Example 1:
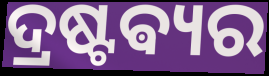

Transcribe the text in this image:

ଦ୍ରଷ୍ଟଵ୍ୟର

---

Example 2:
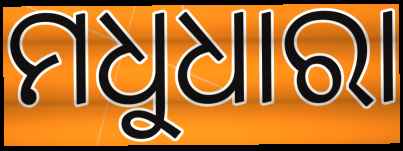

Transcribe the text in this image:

ମଧୁଧାରା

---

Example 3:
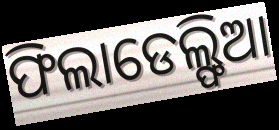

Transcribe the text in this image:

ଫିଲାଡେଲ୍ଫିଆ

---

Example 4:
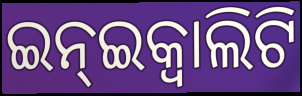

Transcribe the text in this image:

ଇନ୍ଇକ୍ଵାଲିଟି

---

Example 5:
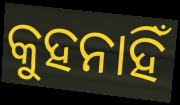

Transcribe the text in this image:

କୁହନାହିଁ